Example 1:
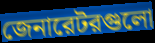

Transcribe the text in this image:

জেনারেটরগুলো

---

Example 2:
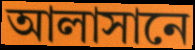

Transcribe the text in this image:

আলাসানে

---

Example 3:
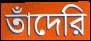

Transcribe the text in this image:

তাঁদেরি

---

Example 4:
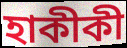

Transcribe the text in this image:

হাকীকী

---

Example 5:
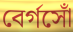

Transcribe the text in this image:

বের্গসোঁ